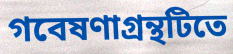
গবেষণাগ্রন্থটিতে